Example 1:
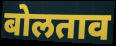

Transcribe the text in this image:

बोलताव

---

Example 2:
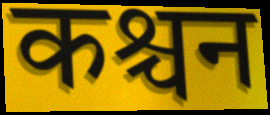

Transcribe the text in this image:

कश्चन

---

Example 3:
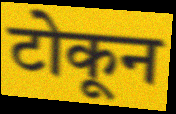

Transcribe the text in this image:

टोकून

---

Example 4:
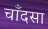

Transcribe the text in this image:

चाँदसा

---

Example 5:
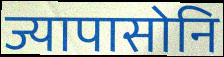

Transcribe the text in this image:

ज्यापासोनि